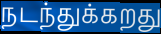
நடந்துக்கறது